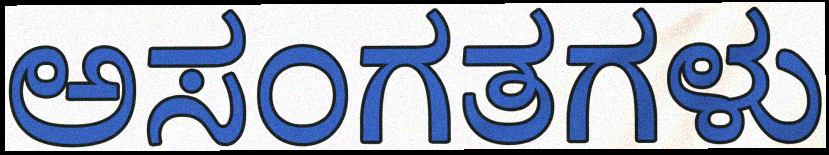
ಅಸಂಗತಗಳು